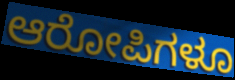
ಆರೋಪಿಗಳೂ